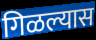
गिळल्यास